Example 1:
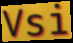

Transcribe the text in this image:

Vsi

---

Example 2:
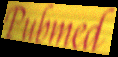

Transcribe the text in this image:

Pubmed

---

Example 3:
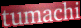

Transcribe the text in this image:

tumachi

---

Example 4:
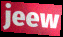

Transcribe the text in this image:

jeew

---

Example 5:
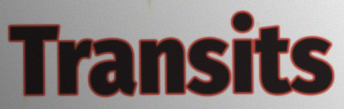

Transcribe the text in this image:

Transits